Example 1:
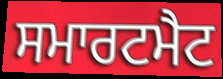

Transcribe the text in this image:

ਸਮਾਰਟਮੈਟ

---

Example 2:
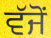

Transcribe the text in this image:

ਵੱਜੋਂ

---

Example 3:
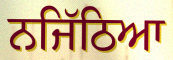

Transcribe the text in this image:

ਨਜਿੱਠਿਆ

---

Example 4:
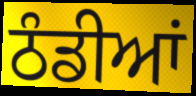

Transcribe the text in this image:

ਠੰਡੀਆਂ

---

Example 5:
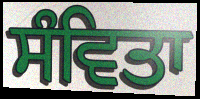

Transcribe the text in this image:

ਸੰਵਿਤਾ